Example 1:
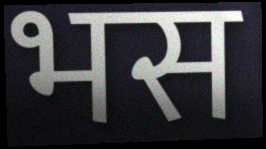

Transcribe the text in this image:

भस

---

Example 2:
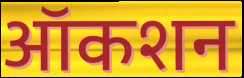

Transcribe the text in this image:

ऑकशन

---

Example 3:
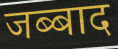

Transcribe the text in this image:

जब्बाद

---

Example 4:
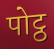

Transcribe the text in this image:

पोट्ठ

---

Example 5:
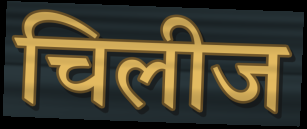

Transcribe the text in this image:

चिलीज